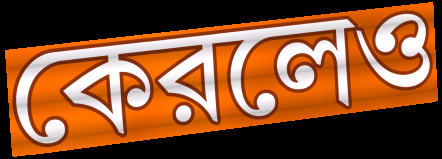
কেরলেও